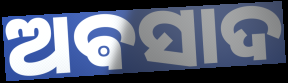
ଅଵସାଦ